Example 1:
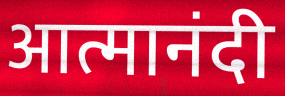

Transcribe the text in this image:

आत्मानंदी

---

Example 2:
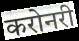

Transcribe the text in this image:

करोनरी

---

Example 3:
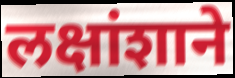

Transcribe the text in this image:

लक्षांशाने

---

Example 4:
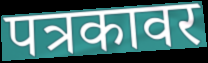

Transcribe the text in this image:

पत्रकावर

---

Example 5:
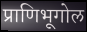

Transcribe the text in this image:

प्राणिभूगोल